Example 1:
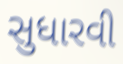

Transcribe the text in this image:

સુધારવી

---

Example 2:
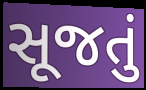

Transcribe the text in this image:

સૂજતું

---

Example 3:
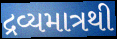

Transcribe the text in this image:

દ્રવ્યમાત્રથી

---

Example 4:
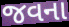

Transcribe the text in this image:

જવના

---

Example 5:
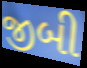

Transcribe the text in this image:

જીબી